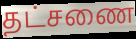
தட்சணை